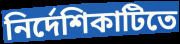
নির্দেশিকাটিতে